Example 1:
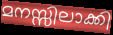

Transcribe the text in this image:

മനസ്സിലാക്കി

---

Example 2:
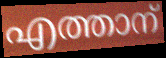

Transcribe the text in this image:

എത്താന്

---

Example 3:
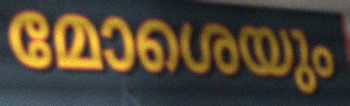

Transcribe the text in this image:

മോശെയും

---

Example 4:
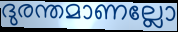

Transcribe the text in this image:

ദുരന്തമാണല്ലോ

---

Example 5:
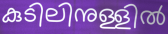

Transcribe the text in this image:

കുടിലിനുള്ളിൽ